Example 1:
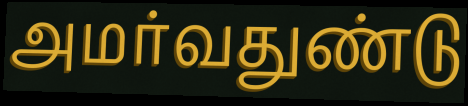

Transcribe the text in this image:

அமர்வதுண்டு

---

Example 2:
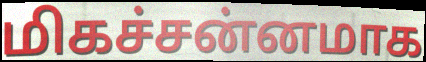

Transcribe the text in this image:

மிகச்சன்னமாக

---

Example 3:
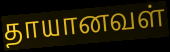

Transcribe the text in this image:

தாயானவள்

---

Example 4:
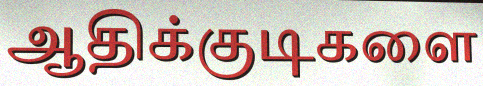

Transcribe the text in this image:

ஆதிக்குடிகளை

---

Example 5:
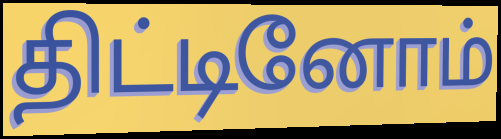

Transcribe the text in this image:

திட்டினோம்